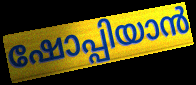
ഷോപ്പിയാൻ